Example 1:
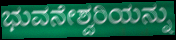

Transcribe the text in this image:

ಭುವನೇಶ್ವರಿಯನ್ನು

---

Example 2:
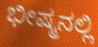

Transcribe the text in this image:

ಭೀಷ್ಮನಲ್ಲಿ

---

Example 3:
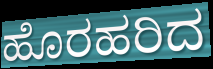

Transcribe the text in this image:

ಹೊರಹರಿದ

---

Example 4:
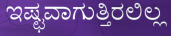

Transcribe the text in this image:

ಇಷ್ಟವಾಗುತ್ತಿರಲಿಲ್ಲ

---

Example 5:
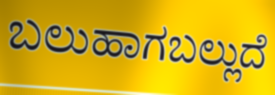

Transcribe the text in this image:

ಬಲುಹಾಗಬಲ್ಲುದೆ